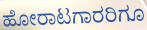
ಹೋರಾಟಗಾರರಿಗೂ